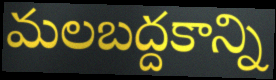
మలబద్దకాన్ని